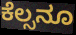
ಕೆಲ್ಸನೂ